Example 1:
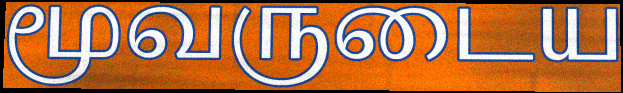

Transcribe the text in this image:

மூவருடைய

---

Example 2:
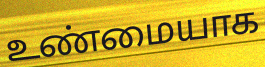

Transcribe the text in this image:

உண்மையாக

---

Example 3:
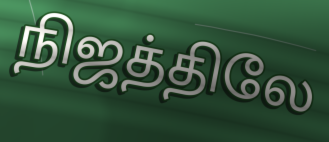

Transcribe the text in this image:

நிஜத்திலே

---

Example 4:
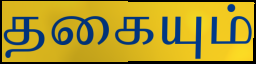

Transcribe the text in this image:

தகையும்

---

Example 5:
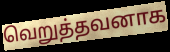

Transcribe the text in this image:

வெறுத்தவனாக